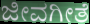
ಜೀವಗೀತೆ